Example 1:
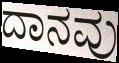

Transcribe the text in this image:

ದಾನವು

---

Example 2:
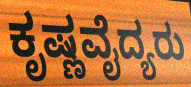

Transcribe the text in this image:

ಕೃಷ್ಣವೈದ್ಯರು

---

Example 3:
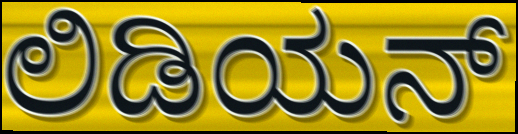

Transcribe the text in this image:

ಲಿಡಿಯನ್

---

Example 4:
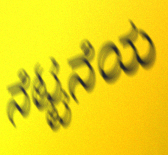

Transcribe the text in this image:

ನೆಟ್ಟನೆಯ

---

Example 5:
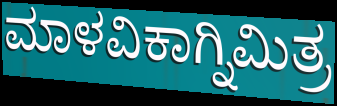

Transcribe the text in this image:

ಮಾಳವಿಕಾಗ್ನಿಮಿತ್ರ